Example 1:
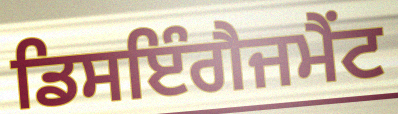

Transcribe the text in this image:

ਡਿਸਇੰਗੈਜਮੈਂਟ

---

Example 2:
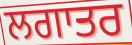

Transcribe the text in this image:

ਲਗਾਤਰ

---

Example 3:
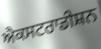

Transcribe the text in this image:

ਐਕਸਟਰਾਡੀਸ਼ਨ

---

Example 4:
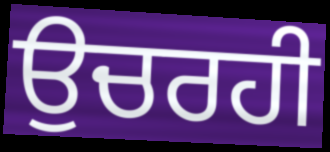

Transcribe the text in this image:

ਉਚਰਹੀ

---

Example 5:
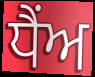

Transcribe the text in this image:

ਧੈਂਅ